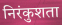
निरंकुशता